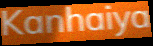
Kanhaiya